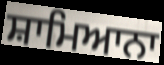
ਸ਼ਾਮਿਆਨਾ